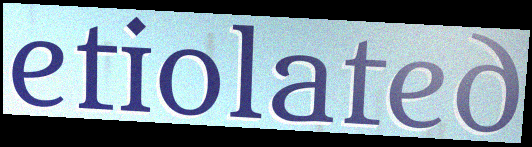
etiolated